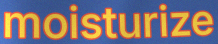
moisturize